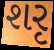
શરૃ